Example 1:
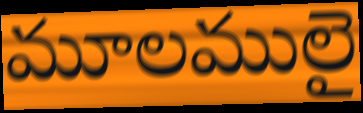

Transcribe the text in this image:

మూలములై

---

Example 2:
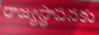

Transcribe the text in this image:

రాజ్యస్థాపనకు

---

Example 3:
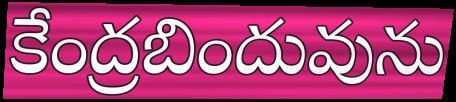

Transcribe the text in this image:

కేంద్రబిందువును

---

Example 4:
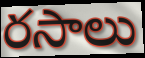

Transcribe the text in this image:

రసాలు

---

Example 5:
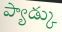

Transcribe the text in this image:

ప్యాడ్కు